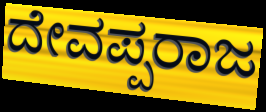
ದೇವಪ್ಪರಾಜ